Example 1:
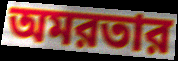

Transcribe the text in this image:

অমরতার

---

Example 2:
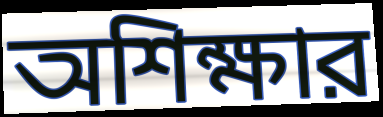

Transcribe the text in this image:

অশিক্ষার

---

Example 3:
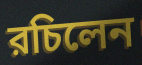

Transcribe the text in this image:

রচিলেন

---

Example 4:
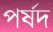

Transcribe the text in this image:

পর্ষদ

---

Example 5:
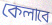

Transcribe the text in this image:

কেলাবে